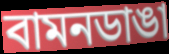
বামনডাঙা